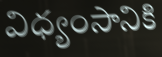
విధ్యంసానికి